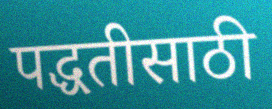
पद्धतीसाठी